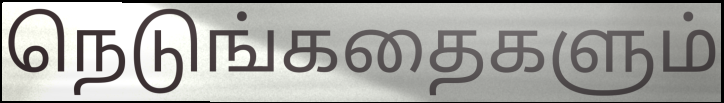
நெடுங்கதைகளும்